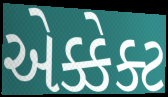
એક્કેક્ટ